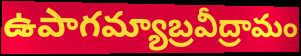
ఉపాగమ్యాబ్రవీద్రామం